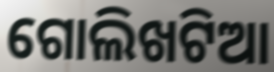
ଗୋଲିଖଟିଆ